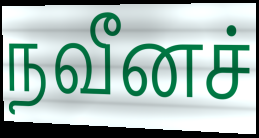
நவீனச்